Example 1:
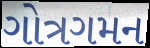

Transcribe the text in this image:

ગોત્રગમન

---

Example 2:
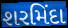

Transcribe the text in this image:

શરમિંદા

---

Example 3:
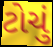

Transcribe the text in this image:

ટોચું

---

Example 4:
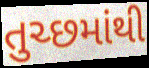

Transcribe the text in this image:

તુચ્છમાંથી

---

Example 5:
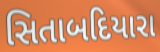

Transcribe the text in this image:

સિતાબદિયારા